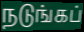
நடுங்கப்